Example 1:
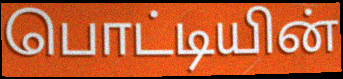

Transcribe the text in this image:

பொட்டியின்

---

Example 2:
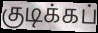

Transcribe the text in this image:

குடிக்கப்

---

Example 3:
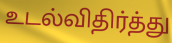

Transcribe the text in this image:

உடல்விதிர்த்து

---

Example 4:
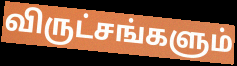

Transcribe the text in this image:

விருட்சங்களும்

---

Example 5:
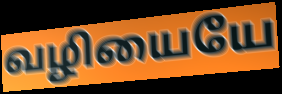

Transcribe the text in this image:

வழியையே